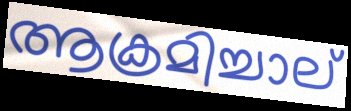
ആക്രമിച്ചാല്